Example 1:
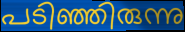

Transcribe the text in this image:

പടിഞ്ഞിരുന്നു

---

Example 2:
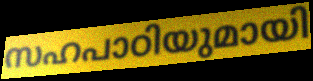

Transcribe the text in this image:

സഹപാഠിയുമായി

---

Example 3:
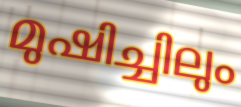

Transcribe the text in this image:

മുഷിച്ചിലും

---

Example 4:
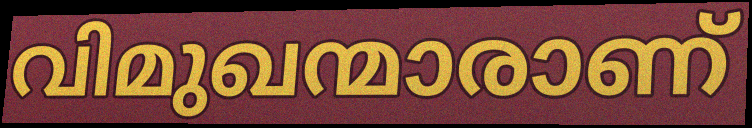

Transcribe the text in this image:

വിമുഖന്മാരാണ്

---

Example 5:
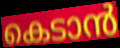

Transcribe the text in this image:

കെടാൻ